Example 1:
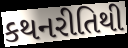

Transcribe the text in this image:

કથનરીતિથી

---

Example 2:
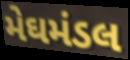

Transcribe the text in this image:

મેઘમંડલ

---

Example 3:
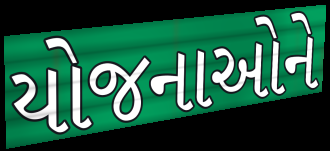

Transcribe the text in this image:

યોજનાઓને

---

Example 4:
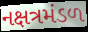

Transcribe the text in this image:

નક્ષત્રમંડળ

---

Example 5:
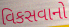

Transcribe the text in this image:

વિકસવાનો